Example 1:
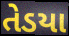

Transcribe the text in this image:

તેડયા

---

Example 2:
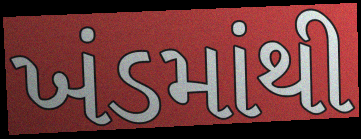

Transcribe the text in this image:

ખંડમાંથી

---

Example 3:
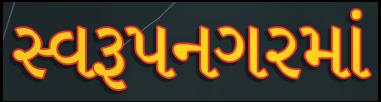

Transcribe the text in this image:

સ્વરૂપનગરમાં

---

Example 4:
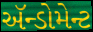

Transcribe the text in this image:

ઍન્ડોમેન્ટ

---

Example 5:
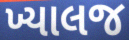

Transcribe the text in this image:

ખ્યાલજ